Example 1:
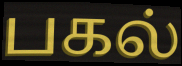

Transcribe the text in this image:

பகல்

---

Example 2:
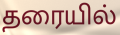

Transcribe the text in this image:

தரையில்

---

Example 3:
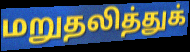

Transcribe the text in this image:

மறுதலித்துக்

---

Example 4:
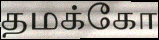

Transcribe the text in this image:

தமக்கோ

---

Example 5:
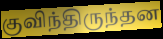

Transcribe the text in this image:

குவிந்திருந்தன